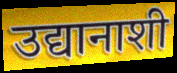
उद्यानाशी